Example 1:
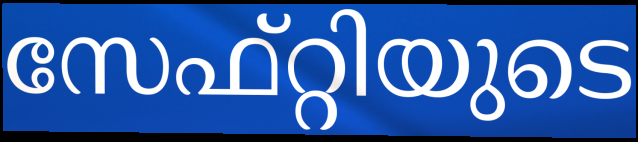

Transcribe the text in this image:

സേഫ്റ്റിയുടെ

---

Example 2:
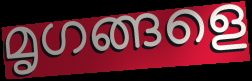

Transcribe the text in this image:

മൃഗങ്ങളെ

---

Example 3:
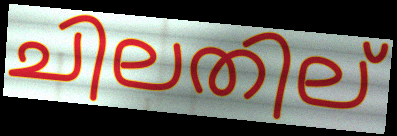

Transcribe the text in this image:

ചിലതില്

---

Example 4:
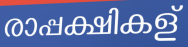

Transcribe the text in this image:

രാപ്പക്ഷികള്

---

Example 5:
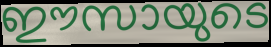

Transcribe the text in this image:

ഈസായുടെ